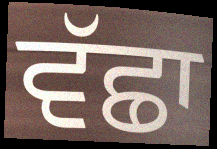
ਵੱਛਾ